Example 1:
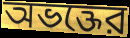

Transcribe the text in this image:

অভক্তের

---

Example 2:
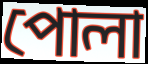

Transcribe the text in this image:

পোলা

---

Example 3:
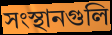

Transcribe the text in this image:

সংস্থানগুলি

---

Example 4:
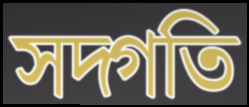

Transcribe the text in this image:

সদ্গতি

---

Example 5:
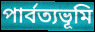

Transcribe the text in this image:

পার্বত্যভূমি